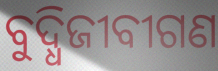
ବୁଦ୍ଧିଜୀବୀଗଣ